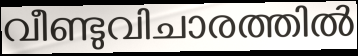
വീണ്ടുവിചാരത്തിൽ